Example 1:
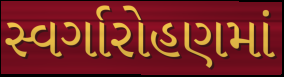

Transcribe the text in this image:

સ્વર્ગારોહણમાં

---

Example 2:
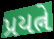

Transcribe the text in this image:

પ્રયત્ને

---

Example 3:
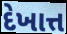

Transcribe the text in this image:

દેખાત્ત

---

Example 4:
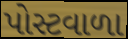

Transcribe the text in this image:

પોસ્ટવાળા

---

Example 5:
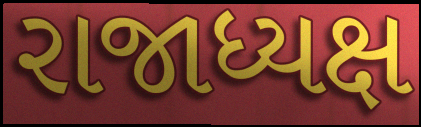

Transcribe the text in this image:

રાજાધ્યક્ષ